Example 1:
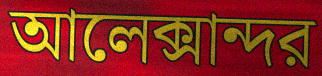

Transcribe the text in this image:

আলেক্সান্দর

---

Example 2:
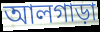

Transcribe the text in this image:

আলগাড়া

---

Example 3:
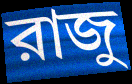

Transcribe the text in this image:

রাজু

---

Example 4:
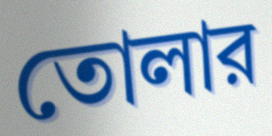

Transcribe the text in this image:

তোলার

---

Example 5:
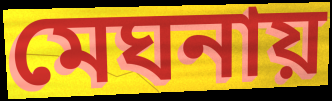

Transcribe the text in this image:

মেঘনায়